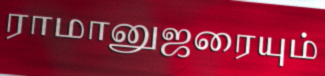
ராமானுஜரையும்